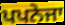
ਪਪਨੇਜਾ